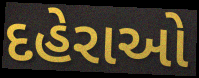
દહેરાઓ